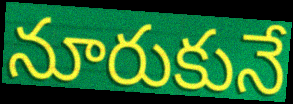
నూరుకునే